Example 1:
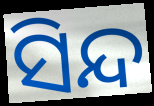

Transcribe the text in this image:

ସିନ୍ଦ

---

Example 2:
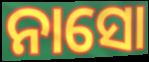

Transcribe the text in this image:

ନାସୋ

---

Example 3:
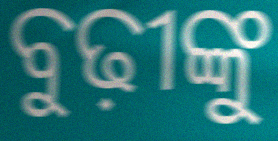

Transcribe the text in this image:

ବୁଢ଼ୀଙ୍କୁ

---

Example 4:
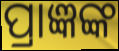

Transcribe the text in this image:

ପ୍ରାଜ୍ଞଙ୍କ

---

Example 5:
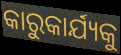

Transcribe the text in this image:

କାରୁକାର୍ଯ୍ୟକୁ